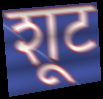
शूट